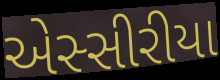
એસ્સીરીયા